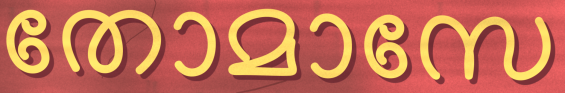
തോമാസേ